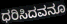
ಧರಿಸಿದವನೂ